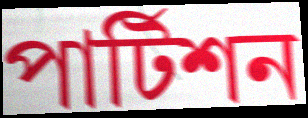
পার্টিশন